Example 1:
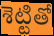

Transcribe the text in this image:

శెట్టితో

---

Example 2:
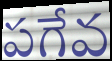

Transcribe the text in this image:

పగేవ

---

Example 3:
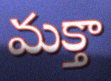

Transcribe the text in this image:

మక్తా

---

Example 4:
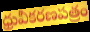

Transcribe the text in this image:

ధ్రువీకరణపత్రం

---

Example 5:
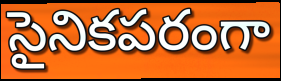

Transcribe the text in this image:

సైనికపరంగా